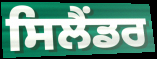
ਸਿਲੈਂਡਰ